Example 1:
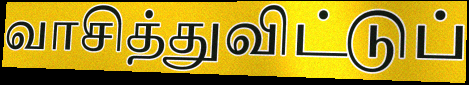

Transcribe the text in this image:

வாசித்துவிட்டுப்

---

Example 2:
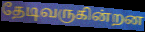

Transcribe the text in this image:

தேடிவருகின்றன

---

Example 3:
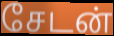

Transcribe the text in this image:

சேடன்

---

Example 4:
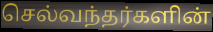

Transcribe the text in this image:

செல்வந்தர்களின்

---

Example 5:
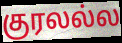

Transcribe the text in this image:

குரலல்ல